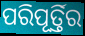
ପରିପୂର୍ତ୍ତିର